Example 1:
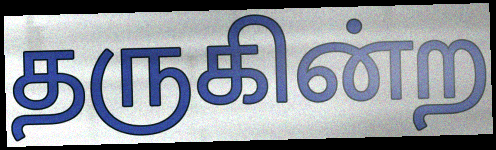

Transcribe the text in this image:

தருகின்ற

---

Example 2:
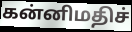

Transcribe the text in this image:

கன்னிமதிச்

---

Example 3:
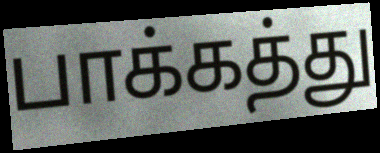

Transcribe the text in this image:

பாக்கத்து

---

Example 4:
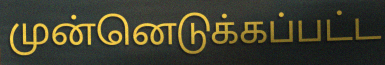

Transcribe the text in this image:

முன்னெடுக்கப்பட்ட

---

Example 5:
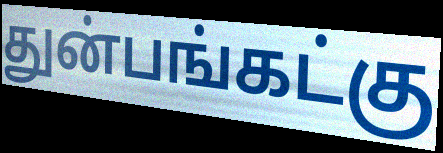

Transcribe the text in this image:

துன்பங்கட்கு